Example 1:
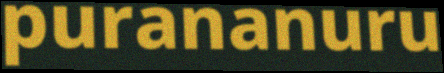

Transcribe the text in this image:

purananuru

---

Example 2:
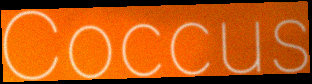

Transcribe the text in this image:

Coccus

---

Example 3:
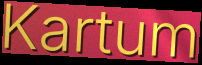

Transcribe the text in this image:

Kartum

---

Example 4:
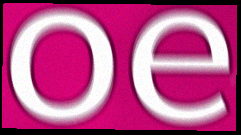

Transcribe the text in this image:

oe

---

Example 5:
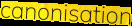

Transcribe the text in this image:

canonisation